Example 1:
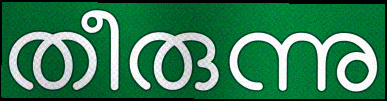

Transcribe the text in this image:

തീരുന്നു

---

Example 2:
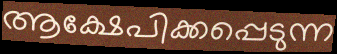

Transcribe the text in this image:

ആക്ഷേപിക്കപ്പെടുന്ന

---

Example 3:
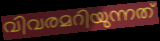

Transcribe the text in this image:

വിവരമറിയുന്നത്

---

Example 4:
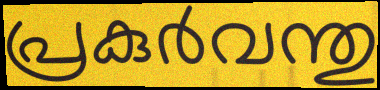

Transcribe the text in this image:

പ്രകുർവന്തു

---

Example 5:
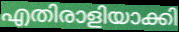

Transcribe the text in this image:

എതിരാളിയാക്കി